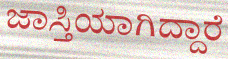
ಜಾಸ್ತಿಯಾಗಿದ್ದಾರೆ